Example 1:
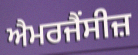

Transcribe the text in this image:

ਐਮਰਜੈਂਸੀਜ਼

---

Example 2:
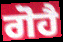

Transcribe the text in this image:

ਗੋਹੈ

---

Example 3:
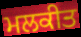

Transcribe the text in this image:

ਮਲਕੀਤ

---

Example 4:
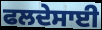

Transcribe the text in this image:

ਫਲਦੇਸਾਈ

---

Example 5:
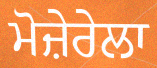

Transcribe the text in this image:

ਮੋਜ਼ੇਰੇਲਾ